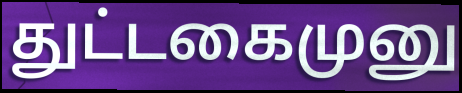
துட்டகைமுனு